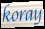
koray